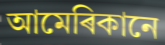
আমেৰিকানে